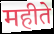
महीते